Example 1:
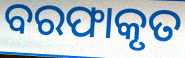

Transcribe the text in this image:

ବରଫାକୃତ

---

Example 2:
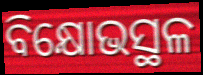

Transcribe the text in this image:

ବିକ୍ଷୋଭସ୍ଥଳ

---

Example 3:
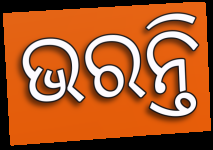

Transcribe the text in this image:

ଭରନ୍ତି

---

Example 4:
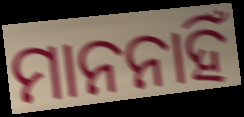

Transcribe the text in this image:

ମାନନାହିଁ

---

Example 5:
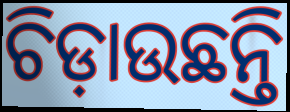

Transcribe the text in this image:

ଚିଡ଼ାଉଛନ୍ତି